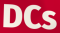
DCs